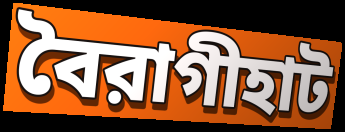
বৈরাগীহাট